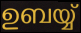
ഉബയ്യ്